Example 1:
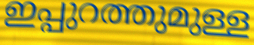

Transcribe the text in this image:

ഇപ്പുറത്തുമുള്ള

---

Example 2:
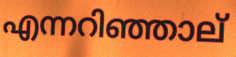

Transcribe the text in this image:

എന്നറിഞ്ഞാല്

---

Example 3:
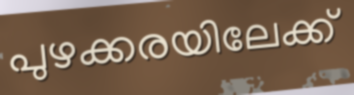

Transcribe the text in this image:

പുഴക്കരയിലേക്ക്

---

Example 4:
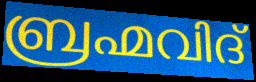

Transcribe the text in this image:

ബ്രഹ്മവിദ്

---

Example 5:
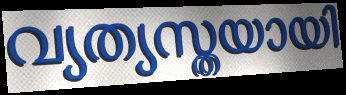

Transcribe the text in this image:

വ്യത്യസ്തയായി